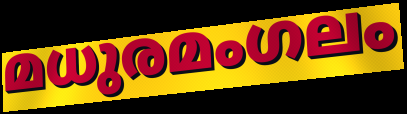
മധുരമംഗലം